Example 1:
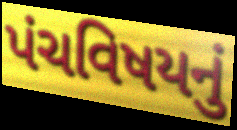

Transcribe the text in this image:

પંચવિષયનું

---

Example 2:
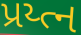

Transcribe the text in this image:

પ્રય્ત્ન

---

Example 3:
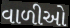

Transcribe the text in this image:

વાળીઓ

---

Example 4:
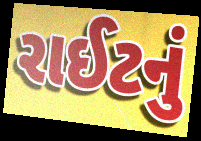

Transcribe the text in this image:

રાઈટનું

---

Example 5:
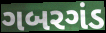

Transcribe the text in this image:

ગબરગંડ